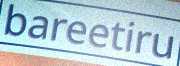
bareetiru